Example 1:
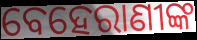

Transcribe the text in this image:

ବେହେରାଣୀଙ୍କ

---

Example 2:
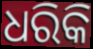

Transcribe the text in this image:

ଧରିକି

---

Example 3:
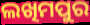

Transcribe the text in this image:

ଲଖିମପୁର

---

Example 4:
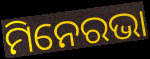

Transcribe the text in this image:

ମିନେରଭା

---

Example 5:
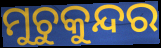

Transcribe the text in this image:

ମୁଚୁକୁନ୍ଦର